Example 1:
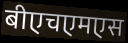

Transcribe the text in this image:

बीएचएमएस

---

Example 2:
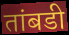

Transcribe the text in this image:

तांबडी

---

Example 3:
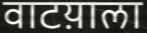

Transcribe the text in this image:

वाटय़ाला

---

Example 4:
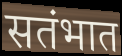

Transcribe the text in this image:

सतंभात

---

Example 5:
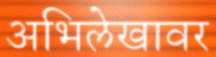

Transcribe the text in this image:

अभिलेखावर